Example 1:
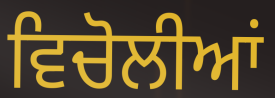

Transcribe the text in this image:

ਵਿਚੋਲੀਆਂ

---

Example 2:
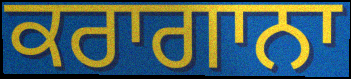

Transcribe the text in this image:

ਕਰਾਗਾਨਾ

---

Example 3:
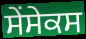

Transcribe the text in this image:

ਸੇਂਸੇਕਸ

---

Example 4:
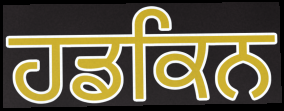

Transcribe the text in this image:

ਹਡਕਿਨ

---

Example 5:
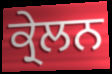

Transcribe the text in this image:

ਕ੍ਰੇਲਨ